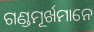
ଗଣ୍ଡମୂର୍ଖମାନେ